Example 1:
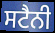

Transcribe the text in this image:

ਸਟੈਨੀ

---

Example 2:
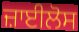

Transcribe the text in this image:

ਜ਼ਾਈਲੋਸ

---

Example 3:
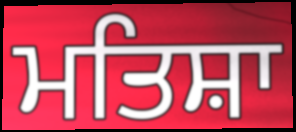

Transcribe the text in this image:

ਮਤਿਸ਼ਾ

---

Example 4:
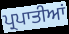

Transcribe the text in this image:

ਪ੍ਰਪਾਤੀਆਂ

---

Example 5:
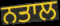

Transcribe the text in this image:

ਨਤਾਲ